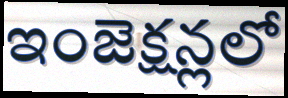
ఇంజెక్షన్లలో